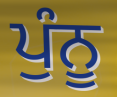
ਪੁੰਨੂ